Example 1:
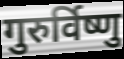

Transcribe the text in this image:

गुरुर्विष्णु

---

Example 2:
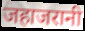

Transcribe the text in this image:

जहाजरानी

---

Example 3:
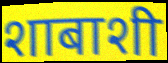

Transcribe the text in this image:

शाबाशी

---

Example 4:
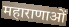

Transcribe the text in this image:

महाराणाओं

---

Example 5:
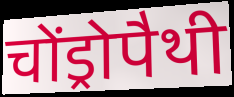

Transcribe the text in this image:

चोंड्रोपैथी